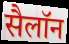
सैलॉन